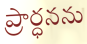
ప్రార్ధనను